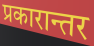
प्रकारान्तर